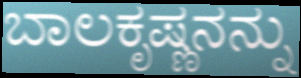
ಬಾಲಕೃಷ್ಣನನ್ನು